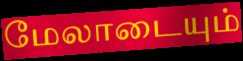
மேலாடையும்